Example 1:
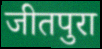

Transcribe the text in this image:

जीतपुरा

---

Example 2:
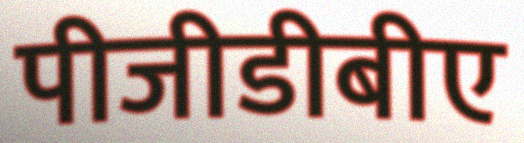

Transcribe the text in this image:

पीजीडीबीए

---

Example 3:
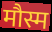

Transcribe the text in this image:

मौस्म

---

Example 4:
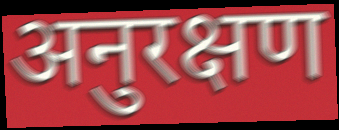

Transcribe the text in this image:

अनुरक्षण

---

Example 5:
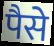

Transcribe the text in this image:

पैसे